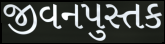
જીવનપુસ્તક